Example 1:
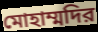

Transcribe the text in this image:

মোহাম্মদির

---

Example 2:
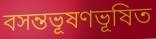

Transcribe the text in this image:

বসন্তভূষণভূষিত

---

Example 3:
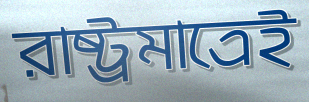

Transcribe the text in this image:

রাষ্ট্রমাত্রেই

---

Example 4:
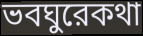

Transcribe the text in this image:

ভবঘুরেকথা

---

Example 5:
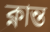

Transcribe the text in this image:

ক্নান্ত